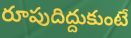
రూపుదిద్దుకుంటే